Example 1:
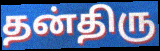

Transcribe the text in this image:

தன்திரு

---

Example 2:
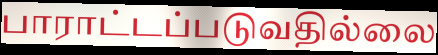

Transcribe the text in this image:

பாராட்டப்படுவதில்லை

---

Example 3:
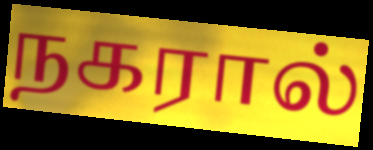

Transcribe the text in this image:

நகரால்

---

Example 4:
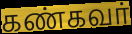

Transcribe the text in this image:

கண்கவர்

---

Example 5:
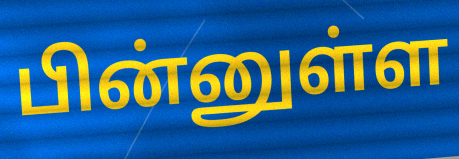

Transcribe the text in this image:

பின்னுள்ள